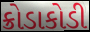
ક્રોડાકોડી